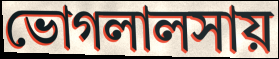
ভোগলালসায়